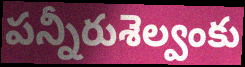
పన్నీరుశెల్వంకు